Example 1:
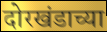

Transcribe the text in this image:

दोरखंडाच्या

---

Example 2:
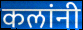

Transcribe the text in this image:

कलांनी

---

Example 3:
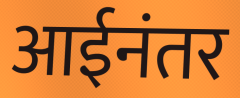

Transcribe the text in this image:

आईनंतर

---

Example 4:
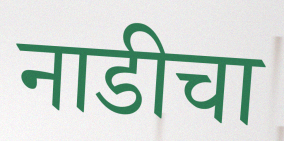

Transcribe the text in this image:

नाडीचा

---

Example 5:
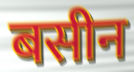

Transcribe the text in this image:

बसीन